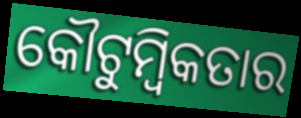
କୌଟୁମ୍ବିକତାର